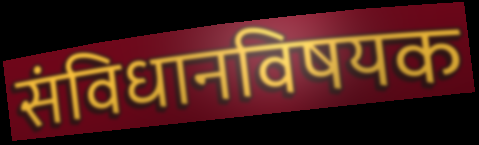
संविधानविषयक